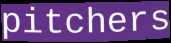
pitchers